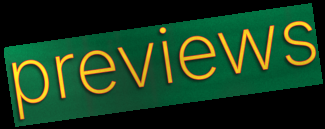
previews